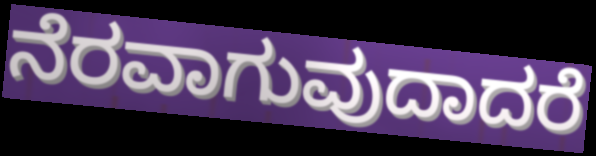
ನೆರವಾಗುವುದಾದರೆ